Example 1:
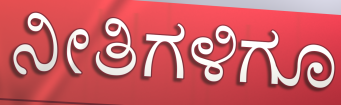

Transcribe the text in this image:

ನೀತಿಗಳಿಗೂ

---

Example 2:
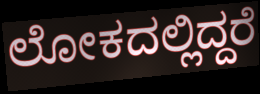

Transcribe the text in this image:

ಲೋಕದಲ್ಲಿದ್ದರೆ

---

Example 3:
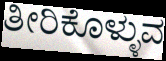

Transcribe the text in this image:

ತೀರಿಕೊಳ್ಳುವ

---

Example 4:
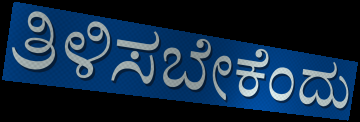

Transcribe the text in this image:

ತಿಳಿಸಬೇಕೆಂದು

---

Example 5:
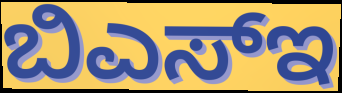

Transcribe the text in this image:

ಬಿಎಸ್ಇ